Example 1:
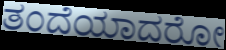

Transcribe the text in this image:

ತಂದೆಯಾದರೋ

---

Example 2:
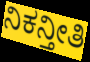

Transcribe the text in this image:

ನಿಕನ್ತೀತಿ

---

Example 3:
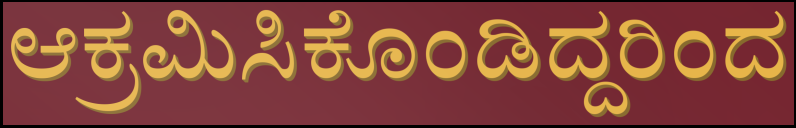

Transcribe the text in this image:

ಆಕ್ರಮಿಸಿಕೊಂಡಿದ್ದರಿಂದ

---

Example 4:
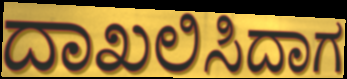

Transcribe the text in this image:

ದಾಖಲಿಸಿದಾಗ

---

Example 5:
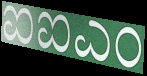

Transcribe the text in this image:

ಐಐಎಂ